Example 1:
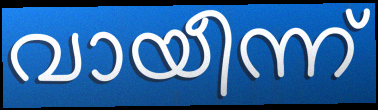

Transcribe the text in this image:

വായീന്ന്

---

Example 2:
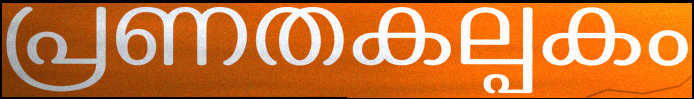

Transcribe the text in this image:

പ്രണതകല്പകം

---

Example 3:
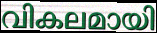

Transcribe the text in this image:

വികലമായി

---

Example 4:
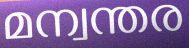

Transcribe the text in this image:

മന്വന്തര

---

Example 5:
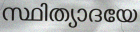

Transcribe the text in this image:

സ്ഥിത്യാദയേ